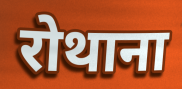
रोथाना